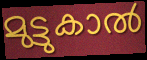
മുട്ടുകാൽ